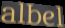
albel